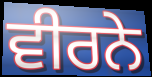
ਵੀਰਨੇ